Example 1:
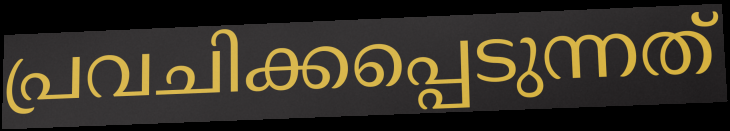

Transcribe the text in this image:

പ്രവചിക്കപ്പെടുന്നത്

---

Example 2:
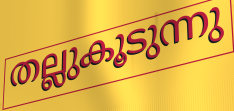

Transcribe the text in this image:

തല്ലുകൂടുന്നു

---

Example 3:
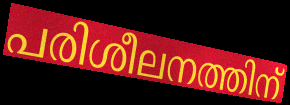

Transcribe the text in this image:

പരിശീലനത്തിന്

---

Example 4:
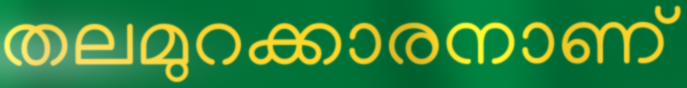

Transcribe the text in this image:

തലമുറക്കാരനാണ്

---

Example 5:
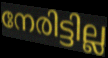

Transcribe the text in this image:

നേരിട്ടില്ല